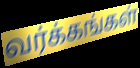
வர்க்கங்கள்